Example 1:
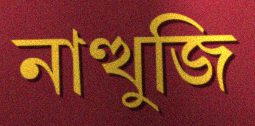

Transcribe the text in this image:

নাত্থুজি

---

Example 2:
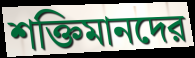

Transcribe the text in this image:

শক্তিমানদের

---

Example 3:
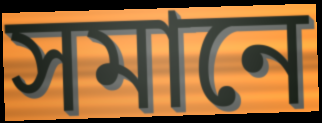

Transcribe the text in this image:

সমানে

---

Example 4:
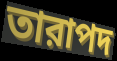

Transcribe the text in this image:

তারাপদ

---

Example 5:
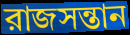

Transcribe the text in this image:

রাজসন্তান